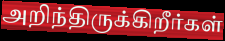
அறிந்திருக்கிறீர்கள்